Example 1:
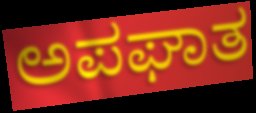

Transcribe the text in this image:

ಅಪಘಾತ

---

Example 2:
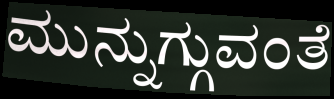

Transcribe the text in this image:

ಮುನ್ನುಗ್ಗುವಂತೆ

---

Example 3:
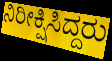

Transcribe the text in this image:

ನಿರೀಕ್ಷಿಸಿದ್ದರು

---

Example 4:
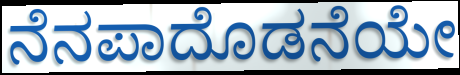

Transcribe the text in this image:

ನೆನಪಾದೊಡನೆಯೇ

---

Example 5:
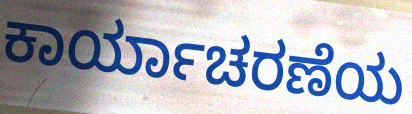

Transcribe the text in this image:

ಕಾರ್ಯಾಚರಣೆಯ